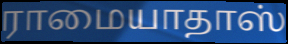
ராமையாதாஸ்